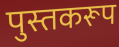
पुस्तकरूप